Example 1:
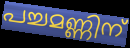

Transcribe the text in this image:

പച്ചമണ്ണിന്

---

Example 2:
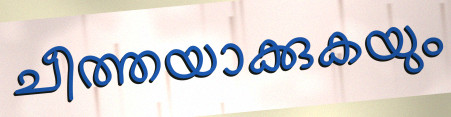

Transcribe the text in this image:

ചീത്തയാക്കുകയും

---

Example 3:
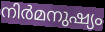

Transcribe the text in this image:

നിർമനുഷ്യം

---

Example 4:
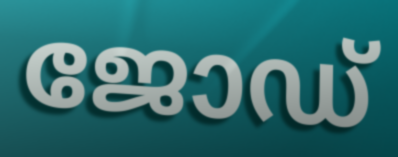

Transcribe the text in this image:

ജോഡ്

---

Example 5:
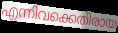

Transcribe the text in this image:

എന്നിവക്കെതിരായ